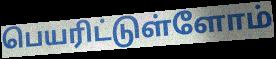
பெயரிட்டுள்ளோம்